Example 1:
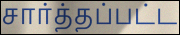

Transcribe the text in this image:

சார்த்தப்பட்ட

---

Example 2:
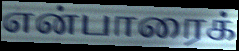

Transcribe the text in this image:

என்பாரைக்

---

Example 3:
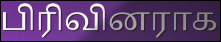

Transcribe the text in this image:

பிரிவினராக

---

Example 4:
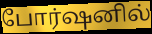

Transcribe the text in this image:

போர்ஷனில்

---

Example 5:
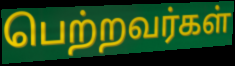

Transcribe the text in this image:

பெற்றவர்கள்